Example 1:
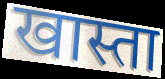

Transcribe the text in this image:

खास्ता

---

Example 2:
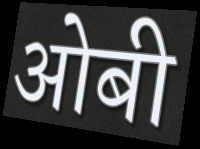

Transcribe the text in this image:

ओबी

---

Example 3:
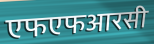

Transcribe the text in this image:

एफएफआरसी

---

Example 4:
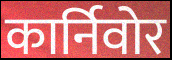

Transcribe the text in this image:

कार्निवोर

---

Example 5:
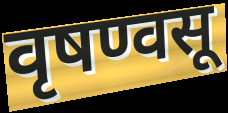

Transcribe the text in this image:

वृषण्वसू